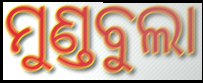
ମୁଣ୍ଡବୁଲା